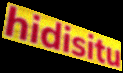
hidisitu